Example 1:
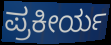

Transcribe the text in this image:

ಪ್ರಕೀರ್ಯ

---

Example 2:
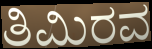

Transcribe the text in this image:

ತಿಮಿರವ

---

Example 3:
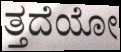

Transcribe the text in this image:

ತ್ತದೆಯೋ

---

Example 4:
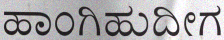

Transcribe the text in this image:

ಹಾಂಗಿಹುದೀಗ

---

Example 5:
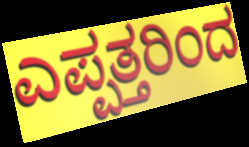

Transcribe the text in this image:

ಎಪ್ಪತ್ತರಿಂದ